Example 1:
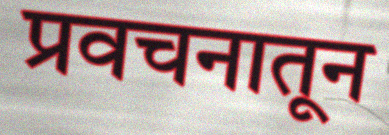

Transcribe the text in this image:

प्रवचनातून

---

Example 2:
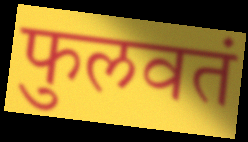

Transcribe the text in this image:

फुलवतं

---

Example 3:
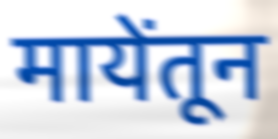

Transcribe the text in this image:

मायेंतून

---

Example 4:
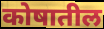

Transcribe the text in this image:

कोषातील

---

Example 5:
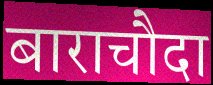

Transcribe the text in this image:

बाराचौदा